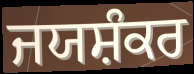
ਜਯਸ਼ੰਕਰ